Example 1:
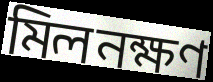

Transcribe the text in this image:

মিলনক্ষণ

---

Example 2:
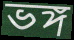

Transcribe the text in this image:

ভঙ্গ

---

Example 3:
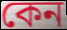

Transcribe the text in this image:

কেন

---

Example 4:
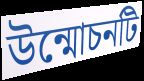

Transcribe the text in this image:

উন্মোচনটি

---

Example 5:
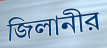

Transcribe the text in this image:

জিলানীর